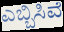
ಎಬ್ಬಿಸಿವೆ